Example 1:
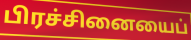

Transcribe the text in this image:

பிரச்சினையைப்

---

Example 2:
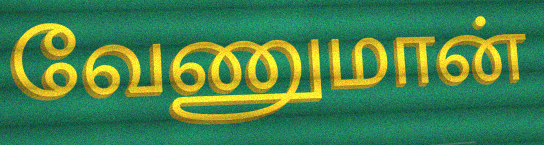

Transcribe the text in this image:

வேணுமான்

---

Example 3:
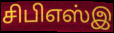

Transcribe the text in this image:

சிபிஎஸ்இ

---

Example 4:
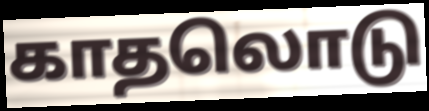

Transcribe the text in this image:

காதலொடு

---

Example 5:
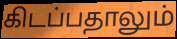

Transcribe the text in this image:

கிடப்பதாலும்